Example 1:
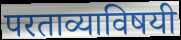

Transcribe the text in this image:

परताव्याविषयी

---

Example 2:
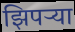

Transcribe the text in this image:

झिपऱ्या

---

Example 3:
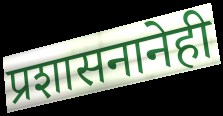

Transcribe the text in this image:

प्रशासनानेही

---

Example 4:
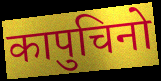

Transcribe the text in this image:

कापुचिनो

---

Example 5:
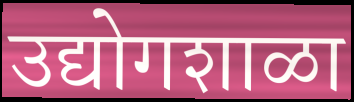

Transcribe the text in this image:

उद्योगशाळा